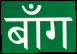
बाँग